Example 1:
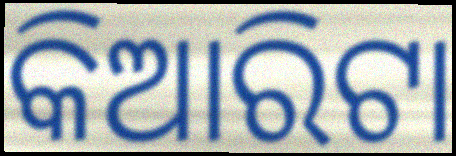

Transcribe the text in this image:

କିଆରିଟା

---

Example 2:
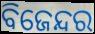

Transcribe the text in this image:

ବିଜେନ୍ଦର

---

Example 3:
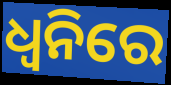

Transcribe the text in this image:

ଧ୍ଵନିରେ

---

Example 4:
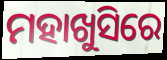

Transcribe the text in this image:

ମହାଖୁସିରେ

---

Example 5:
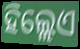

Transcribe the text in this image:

ହିଲ୍ଲେଏ